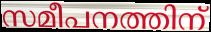
സമീപനത്തിന്